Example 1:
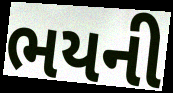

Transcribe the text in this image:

ભયની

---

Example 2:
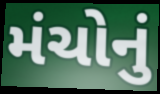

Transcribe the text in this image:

મંચોનું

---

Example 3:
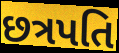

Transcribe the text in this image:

છત્રપતિ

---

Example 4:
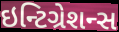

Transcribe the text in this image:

ઇન્ટિગ્રેશન્સ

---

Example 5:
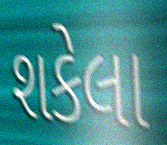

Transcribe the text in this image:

શકેલા